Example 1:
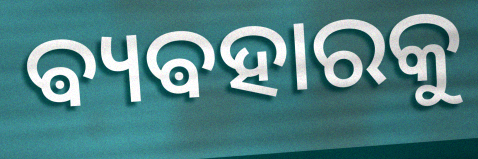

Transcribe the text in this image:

ଵ୍ୟଵହାରକୁ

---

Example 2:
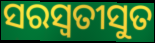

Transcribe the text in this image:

ସରସ୍ୱତୀସୁତ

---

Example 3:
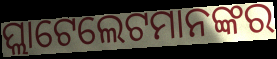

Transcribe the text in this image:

ପ୍ଲାଟେଲେଟମାନଙ୍କର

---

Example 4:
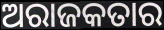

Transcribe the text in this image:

ଅରାଜକତାର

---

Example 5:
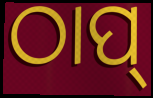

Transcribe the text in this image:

ଠାପ୍